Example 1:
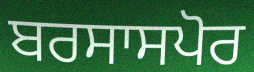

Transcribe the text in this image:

ਬਰਸਾਸਪੋਰ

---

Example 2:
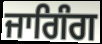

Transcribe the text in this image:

ਜਾਗਿੰਗ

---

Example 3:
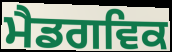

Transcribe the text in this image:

ਮੈਡਗਵਿਕ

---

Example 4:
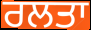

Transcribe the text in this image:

ਰਲਤਾ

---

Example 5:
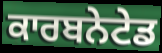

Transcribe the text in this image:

ਕਾਰਬਨੇਟੇਡ